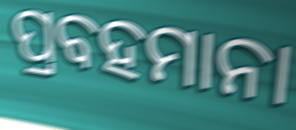
ପ୍ରବହମାନା